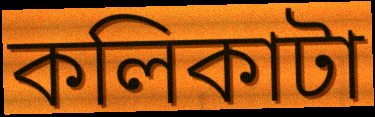
কলিকাটা